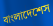
বাংলাদেশেস